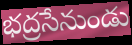
భద్రసేనుండు